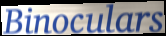
Binoculars